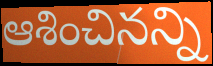
ఆశించినన్ని